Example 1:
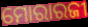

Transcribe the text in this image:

ମୋରାରଜୀ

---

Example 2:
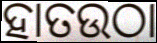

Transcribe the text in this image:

ହାତଉଠା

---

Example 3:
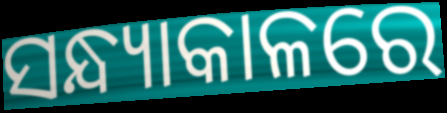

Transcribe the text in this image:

ସନ୍ଧ୍ୟାକାଳରେ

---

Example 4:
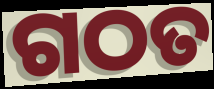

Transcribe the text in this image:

ଗଠତ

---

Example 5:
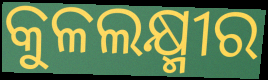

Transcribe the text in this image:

କୁଳଲକ୍ଷ୍ମୀର